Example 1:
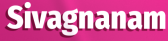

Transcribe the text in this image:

Sivagnanam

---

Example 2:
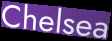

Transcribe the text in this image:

Chelsea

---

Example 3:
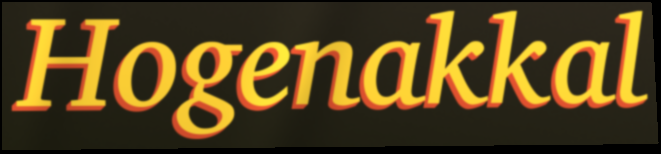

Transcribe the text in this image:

Hogenakkal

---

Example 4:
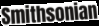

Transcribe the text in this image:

Smithsonian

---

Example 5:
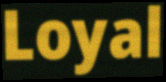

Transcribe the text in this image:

Loyal